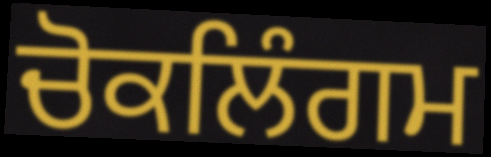
ਚੋਕਲਿੰਗਮ